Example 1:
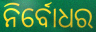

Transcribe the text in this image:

ନିର୍ବୋଧର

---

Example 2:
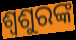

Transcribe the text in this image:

ଶ୍ୱଶୁରଙ୍କ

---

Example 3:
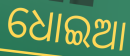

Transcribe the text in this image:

ଧୋଇଆ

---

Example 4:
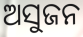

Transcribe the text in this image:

ଅସୁଜନ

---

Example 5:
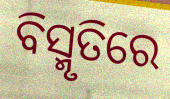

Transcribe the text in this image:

ବିସ୍ମୃତିରେ